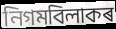
নিগমবিলাকৰ